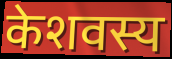
केशवस्य